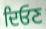
ਦਿਓਣ